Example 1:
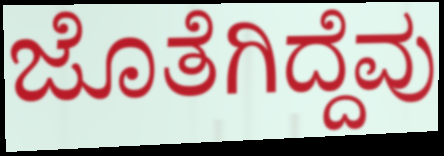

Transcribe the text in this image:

ಜೊತೆಗಿದ್ದೆವು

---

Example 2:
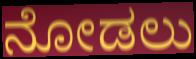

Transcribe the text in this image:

ನೋಡಲು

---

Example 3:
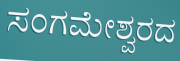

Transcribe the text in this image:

ಸಂಗಮೇಶ್ವರದ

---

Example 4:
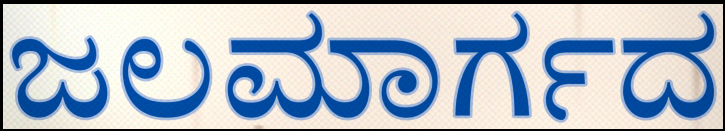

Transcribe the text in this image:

ಜಲಮಾರ್ಗದ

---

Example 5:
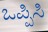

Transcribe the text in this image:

ಒಪ್ಪಿಸಿ